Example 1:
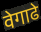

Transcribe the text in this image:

वेगाढे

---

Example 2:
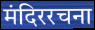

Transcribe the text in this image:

मंदिररचना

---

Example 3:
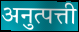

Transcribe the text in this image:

अनुत्पत्ती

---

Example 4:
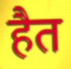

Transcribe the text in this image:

हैत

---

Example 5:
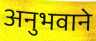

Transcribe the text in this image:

अनुभवाने